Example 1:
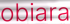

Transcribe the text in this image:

obiara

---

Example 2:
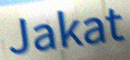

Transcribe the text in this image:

Jakat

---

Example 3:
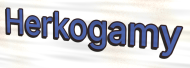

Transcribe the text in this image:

Herkogamy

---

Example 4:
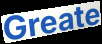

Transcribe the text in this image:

Greate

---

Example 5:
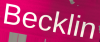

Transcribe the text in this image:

Becklin